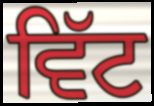
ਵਿੱਟ